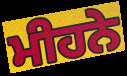
ਮੀਹਨੇ